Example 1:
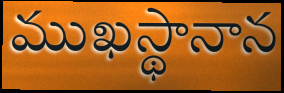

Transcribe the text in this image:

ముఖస్థానాన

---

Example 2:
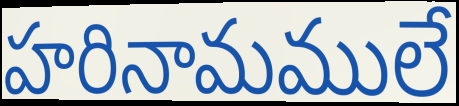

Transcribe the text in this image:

హరినామములే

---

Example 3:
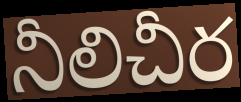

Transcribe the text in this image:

నీలిచీర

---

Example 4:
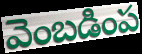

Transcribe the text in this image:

వెంబడింప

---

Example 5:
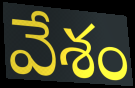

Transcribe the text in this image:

వేశం